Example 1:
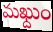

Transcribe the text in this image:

మఖ్దుం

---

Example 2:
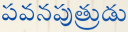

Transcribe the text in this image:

పవనపుత్రుడు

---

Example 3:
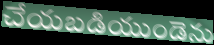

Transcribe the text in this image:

చేయబడియుండెను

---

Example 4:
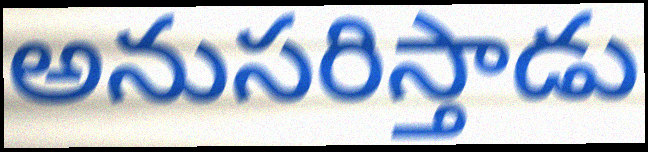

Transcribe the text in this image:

అనుసరిస్తాడు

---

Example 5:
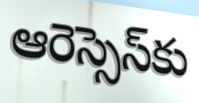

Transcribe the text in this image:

ఆరెస్సెస్‌కు